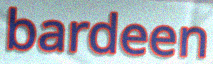
bardeen